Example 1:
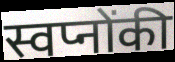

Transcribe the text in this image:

स्वप्नोंकी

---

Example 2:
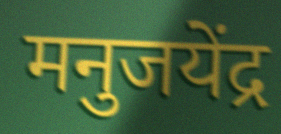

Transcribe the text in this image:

मनुजयेंद्र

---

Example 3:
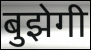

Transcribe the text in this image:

बुझेगी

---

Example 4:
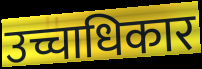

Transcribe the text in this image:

उच्चाधिकार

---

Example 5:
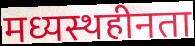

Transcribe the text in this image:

मध्यस्थहीनता